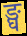
ङ्घ